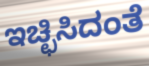
ಇಚ್ಛಿಸಿದಂತೆ